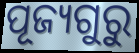
ପୂଜ୍ୟଗୁରୁ